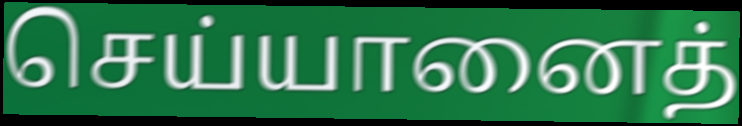
செய்யானைத்